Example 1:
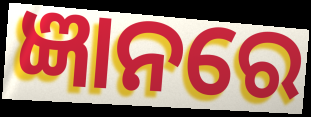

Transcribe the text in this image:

ଜ୍ଞାନରେ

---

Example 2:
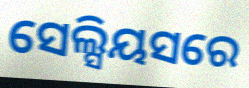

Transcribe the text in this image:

ସେଲ୍ସିୟସରେ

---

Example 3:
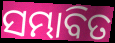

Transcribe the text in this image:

ସମ୍ଭାବିତ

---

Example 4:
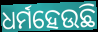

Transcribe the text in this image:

ଧର୍ମହେଉଛି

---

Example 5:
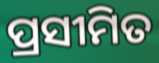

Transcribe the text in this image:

ପ୍ରସୀମିତ